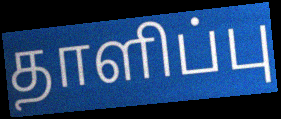
தாளிப்பு